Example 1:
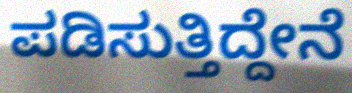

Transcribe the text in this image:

ಪಡಿಸುತ್ತಿದ್ದೇನೆ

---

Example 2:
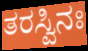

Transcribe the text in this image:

ತರಸ್ವಿನಃ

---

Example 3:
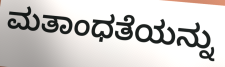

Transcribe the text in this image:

ಮತಾಂಧತೆಯನ್ನು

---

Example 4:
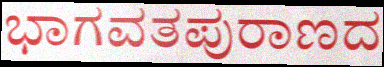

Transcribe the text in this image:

ಭಾಗವತಪುರಾಣದ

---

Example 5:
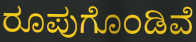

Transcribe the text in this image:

ರೂಪುಗೊಂಡಿವೆ